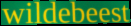
wildebeest